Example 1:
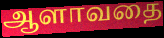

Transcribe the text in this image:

ஆளாவதை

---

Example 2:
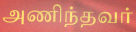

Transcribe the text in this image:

அணிந்தவர்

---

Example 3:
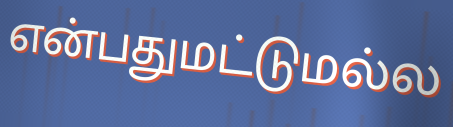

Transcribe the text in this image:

என்பதுமட்டுமல்ல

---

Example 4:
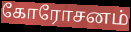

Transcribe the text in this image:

கோரோசனம்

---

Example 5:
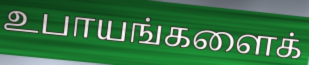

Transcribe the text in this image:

உபாயங்களைக்